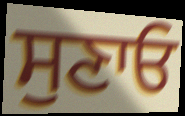
ਸੁਣਾਓ